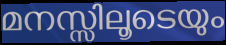
മനസ്സിലൂടെയും